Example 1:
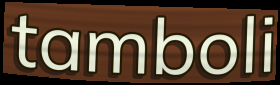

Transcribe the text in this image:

tamboli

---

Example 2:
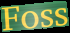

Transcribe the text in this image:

Foss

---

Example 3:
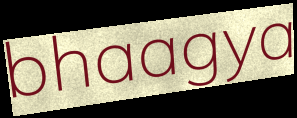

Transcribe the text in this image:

bhaagya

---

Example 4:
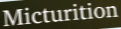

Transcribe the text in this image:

Micturition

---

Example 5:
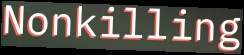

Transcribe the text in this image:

Nonkilling